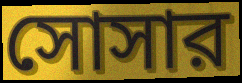
সোসার